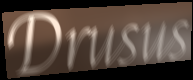
Drusus